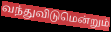
வந்துவிடுமென்றும்